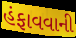
હંફાવવાની